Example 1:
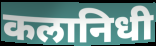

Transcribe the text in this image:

कलानिधी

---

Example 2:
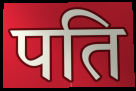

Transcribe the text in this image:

पति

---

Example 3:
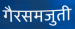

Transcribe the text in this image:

गैरसमजुती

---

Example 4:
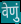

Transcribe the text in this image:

वेणुं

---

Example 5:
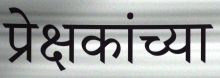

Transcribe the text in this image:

प्रेक्षकांच्या